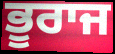
ਭੂਰਾਜ